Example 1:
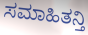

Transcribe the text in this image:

ಸಮಾಹಿತನ್ತಿ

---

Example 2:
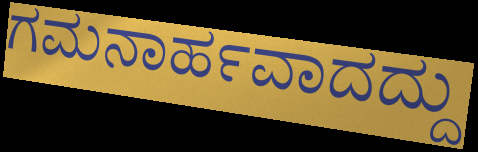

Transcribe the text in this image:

ಗಮನಾರ್ಹವಾದದ್ದು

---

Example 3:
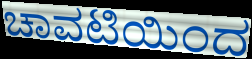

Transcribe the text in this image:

ಚಾವಟಿಯಿಂದ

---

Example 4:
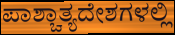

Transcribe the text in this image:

ಪಾಶ್ಚಾತ್ಯದೇಶಗಳಲ್ಲಿ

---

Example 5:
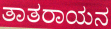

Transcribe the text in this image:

ತಾತರಾಯನ